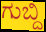
ಗುಬ್ದಿ